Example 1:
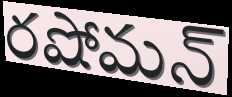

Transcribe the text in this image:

రషోమన్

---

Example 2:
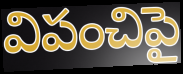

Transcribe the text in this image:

విపంచిపై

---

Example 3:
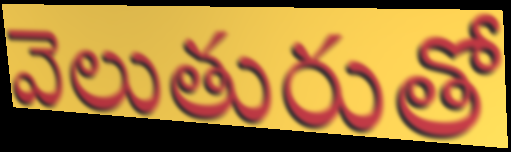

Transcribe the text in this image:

వెలుతురుతో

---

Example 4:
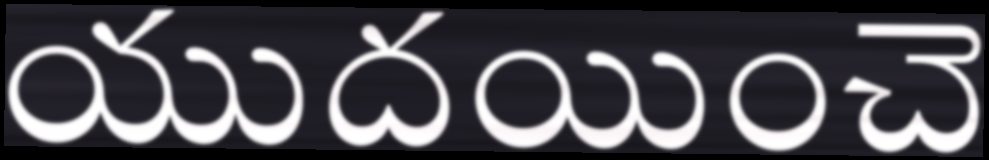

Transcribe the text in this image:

యుదయించె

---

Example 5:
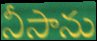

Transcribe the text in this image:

నీసాను